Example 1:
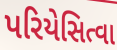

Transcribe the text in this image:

પરિયેસિત્વા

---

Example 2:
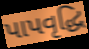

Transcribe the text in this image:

પાપવૃદ્ધિ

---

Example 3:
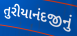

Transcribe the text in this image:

તુરીયાનંદજીનું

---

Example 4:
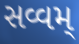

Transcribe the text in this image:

સવ્વમ્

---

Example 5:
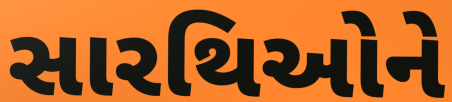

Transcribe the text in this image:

સારથિઓને